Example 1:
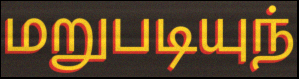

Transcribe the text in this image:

மறுபடியுந்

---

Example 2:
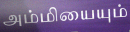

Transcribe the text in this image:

அம்மியையும்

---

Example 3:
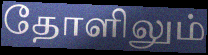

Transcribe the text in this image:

தோளிலும்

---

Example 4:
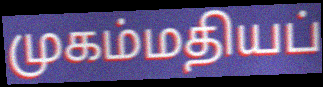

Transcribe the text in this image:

முகம்மதியப்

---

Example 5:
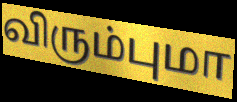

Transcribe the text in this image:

விரும்புமா